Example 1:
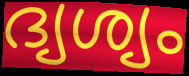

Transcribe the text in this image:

ദ്യശ്യം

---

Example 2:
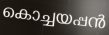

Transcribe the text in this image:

കൊച്ചയപ്പൻ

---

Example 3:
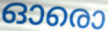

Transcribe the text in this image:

ഓരൊ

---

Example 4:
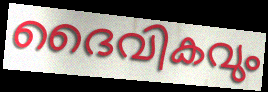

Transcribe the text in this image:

ദൈവികവും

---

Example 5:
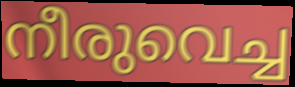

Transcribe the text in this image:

നീരുവെച്ച